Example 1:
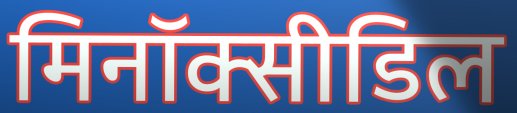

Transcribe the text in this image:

मिनॉक्सीडिल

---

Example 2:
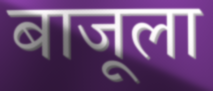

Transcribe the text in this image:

बाजूला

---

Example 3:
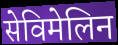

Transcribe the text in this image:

सेविमेलिन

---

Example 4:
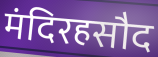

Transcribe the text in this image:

मंदिरहसौद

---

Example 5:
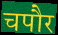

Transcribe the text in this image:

चपौर